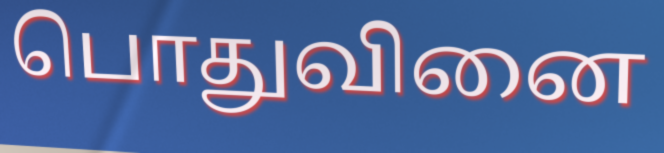
பொதுவினை